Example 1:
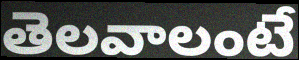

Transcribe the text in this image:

తెలవాలంటే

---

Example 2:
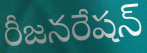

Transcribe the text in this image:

రీజనరేషన్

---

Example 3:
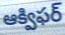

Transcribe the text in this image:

ఆక్విఫర్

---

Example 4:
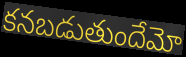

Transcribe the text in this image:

కనబడుతుందేమో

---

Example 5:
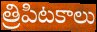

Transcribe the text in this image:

త్రిపిటకాలు